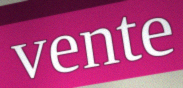
vente